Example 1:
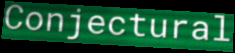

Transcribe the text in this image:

Conjectural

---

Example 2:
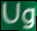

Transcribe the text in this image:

Ug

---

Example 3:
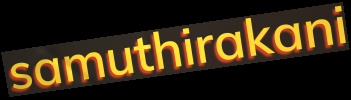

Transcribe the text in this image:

samuthirakani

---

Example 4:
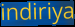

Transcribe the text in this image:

indiriya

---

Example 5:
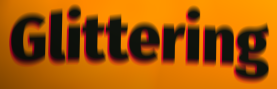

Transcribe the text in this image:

Glittering